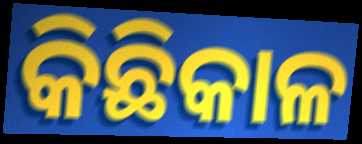
କିଛିକାଳ